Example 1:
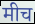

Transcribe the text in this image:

मीच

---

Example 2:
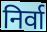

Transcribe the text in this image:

निर्वा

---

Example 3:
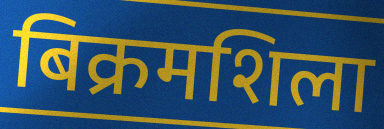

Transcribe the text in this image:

बिक्रमशिला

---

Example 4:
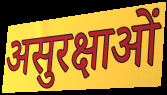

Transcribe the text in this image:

असुरक्षाओं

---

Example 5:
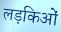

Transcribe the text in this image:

लड़किओं